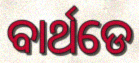
ବାର୍ଥଡେ